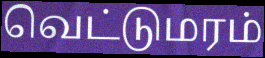
வெட்டுமரம்